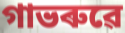
গাভৰুৱে